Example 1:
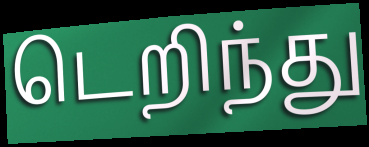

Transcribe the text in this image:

டெறிந்து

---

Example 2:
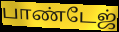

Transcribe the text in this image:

பாண்டேஜ்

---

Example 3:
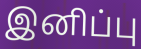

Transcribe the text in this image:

இனிப்பு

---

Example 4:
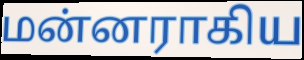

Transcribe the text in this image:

மன்னராகிய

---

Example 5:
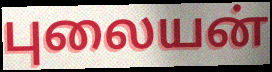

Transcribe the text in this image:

புலையன்